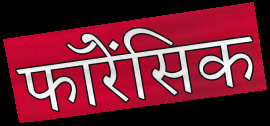
फॉरेंसिक